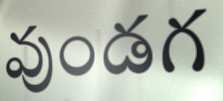
వుండగ